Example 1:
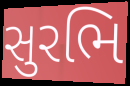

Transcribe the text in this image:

સુરભિ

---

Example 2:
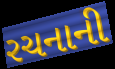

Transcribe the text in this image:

રચનાની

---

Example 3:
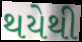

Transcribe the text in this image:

થયેથી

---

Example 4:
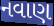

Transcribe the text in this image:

નવાણ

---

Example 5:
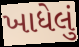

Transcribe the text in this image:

ખાધેલું